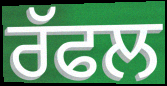
ਰੱਫਲ